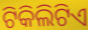
ଟିକିଲିଟିଏ